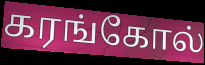
கரங்கோல்